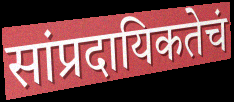
सांप्रदायिकतेचं